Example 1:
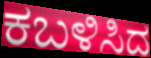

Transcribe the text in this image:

ಕಬಳಿಸಿದ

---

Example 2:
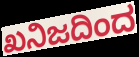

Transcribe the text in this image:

ಖನಿಜದಿಂದ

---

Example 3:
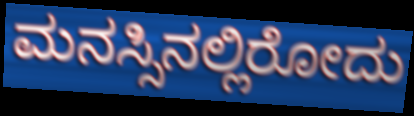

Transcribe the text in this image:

ಮನಸ್ಸಿನಲ್ಲಿರೋದು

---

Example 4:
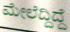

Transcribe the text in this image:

ಮೇಲೆದ್ದಿದ್ದೆ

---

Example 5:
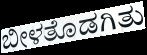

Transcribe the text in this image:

ಬೀಳತೊಡಗಿತು